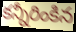
కన్నీరింకిన